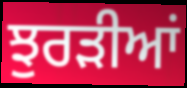
ਝੁਰੜੀਆਂ